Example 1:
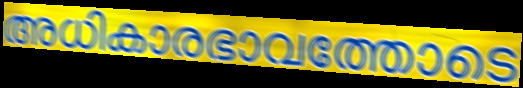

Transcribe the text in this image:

അധികാരഭാവത്തോടെ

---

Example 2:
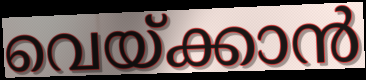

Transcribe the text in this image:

വെയ്ക്കാൻ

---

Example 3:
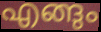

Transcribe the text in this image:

എങ്ങും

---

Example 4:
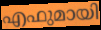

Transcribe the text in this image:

എഫുമായി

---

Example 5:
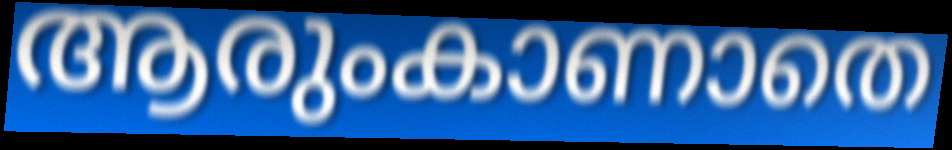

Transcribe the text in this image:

ആരുംകാണാതെ